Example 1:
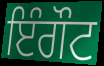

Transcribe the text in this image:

ਇੰਗੌਟ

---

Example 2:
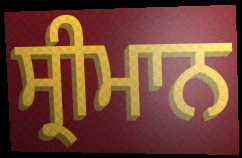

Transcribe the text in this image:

ਸ੍ਰੀਮਾਨ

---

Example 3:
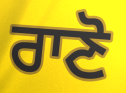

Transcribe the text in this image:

ਰਾਣੋ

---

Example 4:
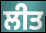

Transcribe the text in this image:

ਲੀਤ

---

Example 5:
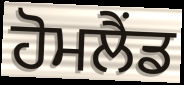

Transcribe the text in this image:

ਹੋਮਲੈਂਡ